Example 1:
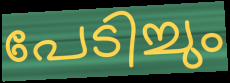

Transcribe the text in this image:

പേടിച്ചും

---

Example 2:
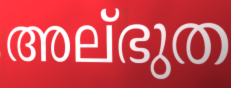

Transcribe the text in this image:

അല്ഭുത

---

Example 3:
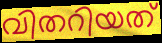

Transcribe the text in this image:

വിതറിയത്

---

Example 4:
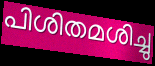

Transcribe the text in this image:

പിശിതമശിച്ചു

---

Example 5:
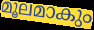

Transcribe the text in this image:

മൂലമാകും